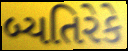
બ્યતિરેકે